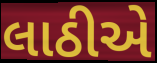
લાઠીએ